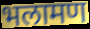
भलामण